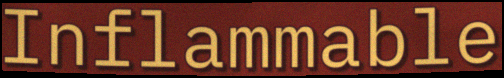
Inflammable